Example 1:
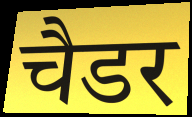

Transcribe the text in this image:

चैडर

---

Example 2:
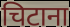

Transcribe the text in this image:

चिटाना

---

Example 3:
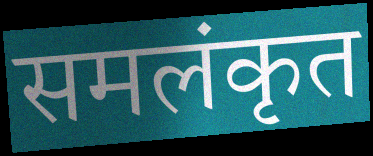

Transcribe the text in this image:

समलंकृत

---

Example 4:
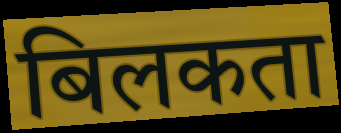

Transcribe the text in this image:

बिलकता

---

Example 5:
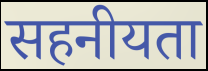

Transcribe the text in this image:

सहनीयता